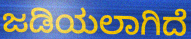
ಜಡಿಯಲಾಗಿದೆ